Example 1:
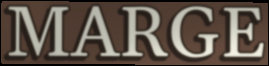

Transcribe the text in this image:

MARGE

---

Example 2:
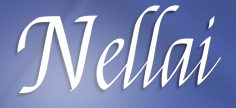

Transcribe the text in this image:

Nellai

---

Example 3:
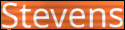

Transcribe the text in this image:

Stevens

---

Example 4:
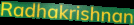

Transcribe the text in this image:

Radhakrishnan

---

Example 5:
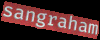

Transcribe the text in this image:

sangraham